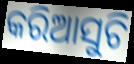
କରିଆସୁଚି